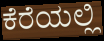
ಕೆರೆಯಲ್ಲಿ